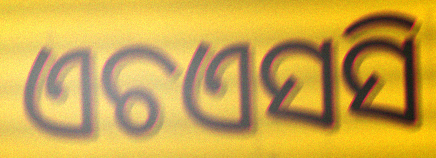
ଏଚଏସସି